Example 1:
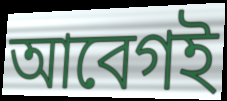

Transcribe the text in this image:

আবেগই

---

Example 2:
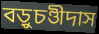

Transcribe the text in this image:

বড়ুচণ্ডীদাস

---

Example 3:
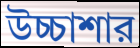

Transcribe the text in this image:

উচ্চাশার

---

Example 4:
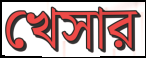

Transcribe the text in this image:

খেসার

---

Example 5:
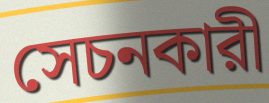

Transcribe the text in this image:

সেচনকারী